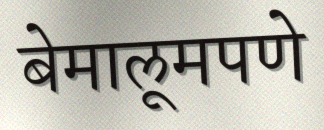
बेमालूमपणे